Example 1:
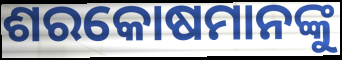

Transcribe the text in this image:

ଶରକୋଷମାନଙ୍କୁ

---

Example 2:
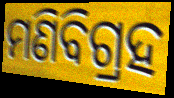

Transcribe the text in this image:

ମଣିବିଗ୍ରହ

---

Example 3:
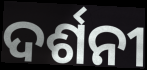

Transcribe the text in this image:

ଦର୍ଶନୀ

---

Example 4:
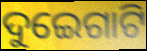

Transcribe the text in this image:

ଦୁଇେଗାଟି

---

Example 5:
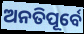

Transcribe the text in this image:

ଅନତିପୂର୍ବେ